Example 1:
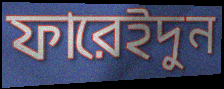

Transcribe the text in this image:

ফারেইদুন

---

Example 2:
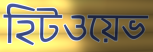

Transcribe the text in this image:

হিটওয়েভ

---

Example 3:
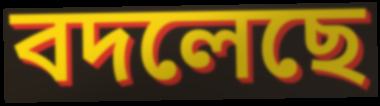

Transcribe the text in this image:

বদলেছে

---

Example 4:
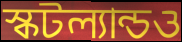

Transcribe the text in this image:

স্কটল্যান্ডও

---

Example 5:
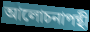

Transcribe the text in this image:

আলোচনাপন্থী